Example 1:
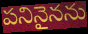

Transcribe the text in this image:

పనినైనను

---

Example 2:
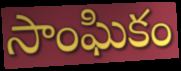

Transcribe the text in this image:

సాంఘికం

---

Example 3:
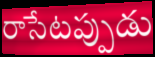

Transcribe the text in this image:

రాసేటప్పుడు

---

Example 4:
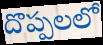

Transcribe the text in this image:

దొప్పలలో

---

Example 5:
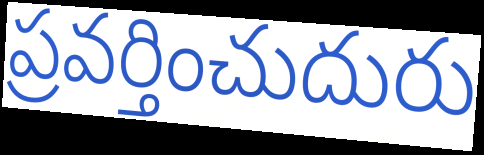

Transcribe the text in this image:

ప్రవర్తించుదురు